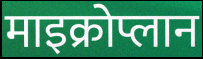
माइक्रोप्लान